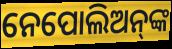
ନେପୋଲିଅନ୍‌ଙ୍କ